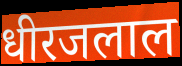
धीरजलाल